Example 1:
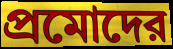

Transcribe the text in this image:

প্রমোদের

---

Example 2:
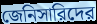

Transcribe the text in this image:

জেনিসারিদের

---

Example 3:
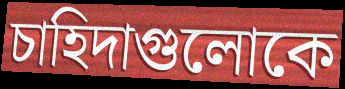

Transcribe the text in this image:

চাহিদাগুলোকে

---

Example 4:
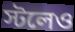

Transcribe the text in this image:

স্টলেও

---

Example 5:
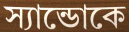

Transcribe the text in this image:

স্যান্ডোকে